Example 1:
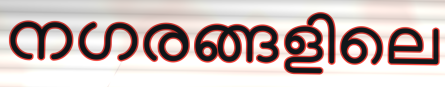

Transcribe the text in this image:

നഗരങ്ങളിലെ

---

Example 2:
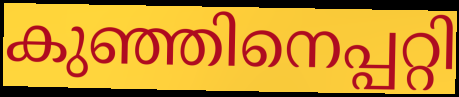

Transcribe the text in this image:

കുഞ്ഞിനെപ്പറ്റി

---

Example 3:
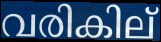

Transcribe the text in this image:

വരികില്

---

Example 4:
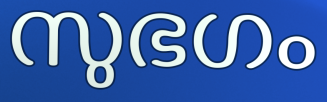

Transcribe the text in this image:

സുഭഗം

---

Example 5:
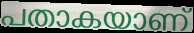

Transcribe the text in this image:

പതാകയാണ്